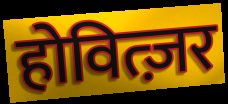
होवित्ज़र